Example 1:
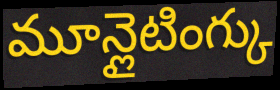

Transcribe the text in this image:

మూన్లైటింగ్కు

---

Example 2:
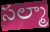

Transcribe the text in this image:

సల్మా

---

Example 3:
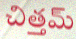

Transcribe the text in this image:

చిత్తమ్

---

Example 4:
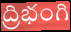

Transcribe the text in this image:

ద్రిభంగి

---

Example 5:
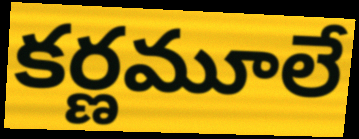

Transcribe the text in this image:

కర్ణమూలే